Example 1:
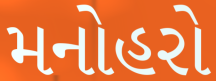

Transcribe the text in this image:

મનોહરો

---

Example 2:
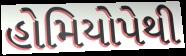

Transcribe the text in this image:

હોમિયોપેથી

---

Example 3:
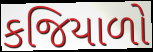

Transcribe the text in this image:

કજિયાળો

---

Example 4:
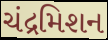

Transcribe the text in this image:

ચંદ્રમિશન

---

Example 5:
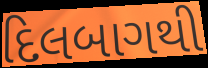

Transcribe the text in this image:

દિલબાગથી